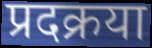
प्रदक्रया